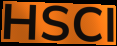
HSCI